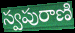
స్వపురాణి